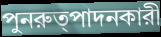
পুনরুত্পাদনকারী